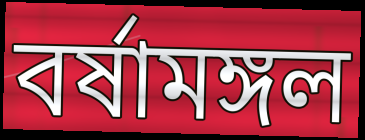
বর্ষামঙ্গল